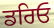
ਡਰਿਓ